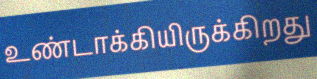
உண்டாக்கியிருக்கிறது